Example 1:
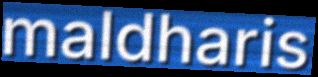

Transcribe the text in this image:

maldharis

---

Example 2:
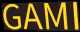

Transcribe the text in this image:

GAMI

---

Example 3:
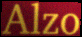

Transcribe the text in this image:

Alzo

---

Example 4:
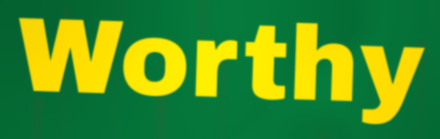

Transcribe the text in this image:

Worthy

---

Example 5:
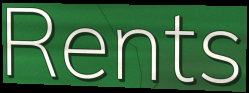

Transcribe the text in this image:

Rents